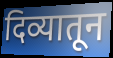
दिव्यातून